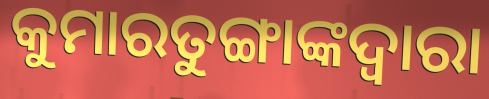
କୁମାରତୁଙ୍ଗାଙ୍କଦ୍ୱାରା